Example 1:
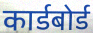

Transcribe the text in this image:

कार्डबोर्ड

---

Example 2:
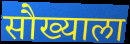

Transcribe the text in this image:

सौख्याला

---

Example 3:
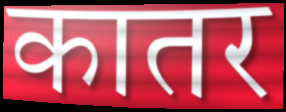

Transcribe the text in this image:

कातर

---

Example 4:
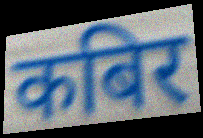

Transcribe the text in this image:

कबिर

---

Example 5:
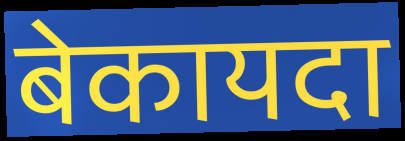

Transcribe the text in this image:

बेकायदा